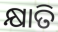
କ୍ଷାତି